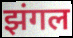
झंगल